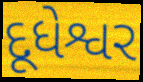
દૂધેશ્વર